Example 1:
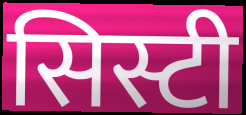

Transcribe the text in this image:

सिस्टी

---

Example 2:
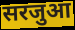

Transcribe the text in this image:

सरजुआ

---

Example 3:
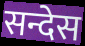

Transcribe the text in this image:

सन्देस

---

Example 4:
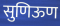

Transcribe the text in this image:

सुणिऊण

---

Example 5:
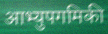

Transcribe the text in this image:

आभ्युपगमिकी